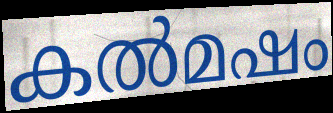
കൽമഷം